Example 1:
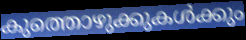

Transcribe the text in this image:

കുത്തൊഴുക്കുകൾക്കും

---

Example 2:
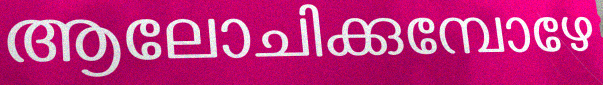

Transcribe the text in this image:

ആലോചിക്കുമ്പോഴേ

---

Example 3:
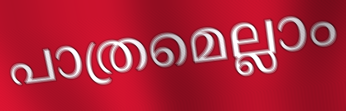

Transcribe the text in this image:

പാത്രമെല്ലാം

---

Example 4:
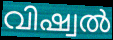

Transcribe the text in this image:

വിഷ്വൽ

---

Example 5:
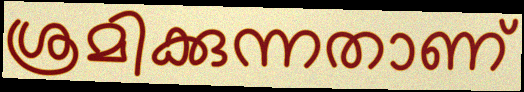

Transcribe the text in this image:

ശ്രമിക്കുന്നതാണ്